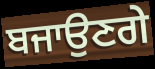
ਬਜਾਉਣਗੇ